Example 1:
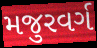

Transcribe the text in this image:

મજુરવર્ગ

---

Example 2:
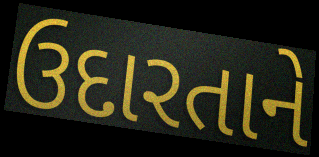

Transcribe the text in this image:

ઉદારતાને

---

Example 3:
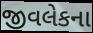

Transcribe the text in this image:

જીવલેકના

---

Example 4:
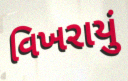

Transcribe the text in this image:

વિખરાયું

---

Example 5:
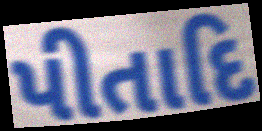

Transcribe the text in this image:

પીતાદિ